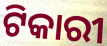
ଟିକାରୀ